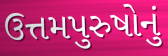
ઉત્તમપુરુષોનું